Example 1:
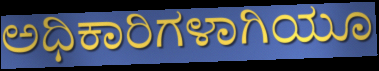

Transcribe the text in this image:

ಅಧಿಕಾರಿಗಳಾಗಿಯೂ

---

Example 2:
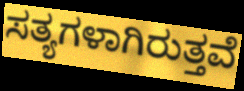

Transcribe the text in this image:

ಸತ್ಯಗಳಾಗಿರುತ್ತವೆ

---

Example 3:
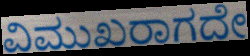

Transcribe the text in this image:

ವಿಮುಖರಾಗದೇ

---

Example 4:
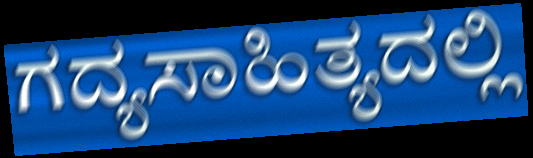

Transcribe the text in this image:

ಗದ್ಯಸಾಹಿತ್ಯದಲ್ಲಿ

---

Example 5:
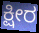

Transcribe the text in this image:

ಕ್ಷೀರ